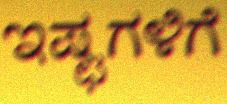
ಇಷ್ಟಗಳಿಗೆ